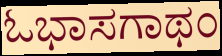
ಓಭಾಸಗಾಥಂ